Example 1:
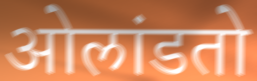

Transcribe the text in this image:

ओलांडतो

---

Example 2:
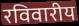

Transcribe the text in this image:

रविवारीय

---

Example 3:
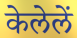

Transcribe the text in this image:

केलेलें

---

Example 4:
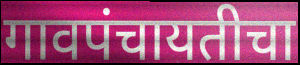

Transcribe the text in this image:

गावपंचायतीचा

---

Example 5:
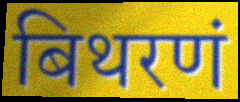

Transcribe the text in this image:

बिथरणं